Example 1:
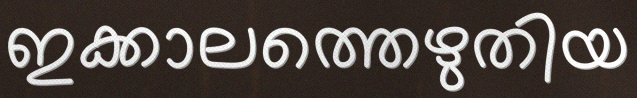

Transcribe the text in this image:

ഇക്കാലത്തെഴുതിയ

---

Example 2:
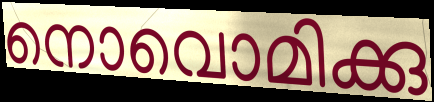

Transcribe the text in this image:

നൊവൊമിക്കു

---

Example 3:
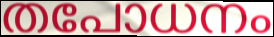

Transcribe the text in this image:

തപോധനം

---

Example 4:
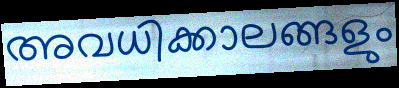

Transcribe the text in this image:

അവധിക്കാലങ്ങളും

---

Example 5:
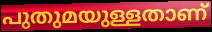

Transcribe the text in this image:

പുതുമയുള്ളതാണ്